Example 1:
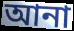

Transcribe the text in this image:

আনা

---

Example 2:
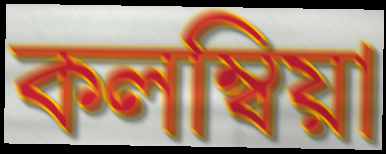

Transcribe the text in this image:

কলম্বিয়া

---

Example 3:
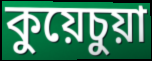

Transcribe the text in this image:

কুয়েচুয়া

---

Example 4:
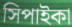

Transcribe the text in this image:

সিপাইকা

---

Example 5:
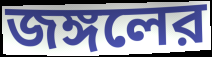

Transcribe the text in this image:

জঙ্গলের